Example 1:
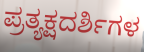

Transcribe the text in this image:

ಪ್ರತ್ಯಕ್ಷದರ್ಶಿಗಳ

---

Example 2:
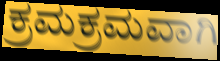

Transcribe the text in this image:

ಕ್ರಮಕ್ರಮವಾಗಿ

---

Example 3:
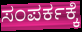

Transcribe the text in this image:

ಸಂಪರ್ಕಕ್ಕೆ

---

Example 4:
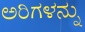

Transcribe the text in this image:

ಅರಿಗಳನ್ನು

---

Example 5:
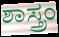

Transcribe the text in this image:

ಶಾಸ್ತ್ರಂ